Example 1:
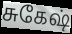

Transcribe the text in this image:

சுகேஷ்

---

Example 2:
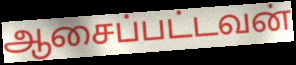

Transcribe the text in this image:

ஆசைப்பட்டவன்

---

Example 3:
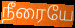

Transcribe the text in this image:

நீரையே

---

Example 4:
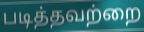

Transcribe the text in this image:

படித்தவற்றை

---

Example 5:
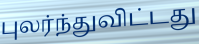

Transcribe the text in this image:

புலர்ந்துவிட்டது